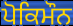
ਪੋਕਿਮੌਨ